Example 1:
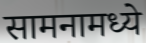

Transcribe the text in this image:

सामनामध्ये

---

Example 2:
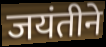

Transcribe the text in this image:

जयंतीने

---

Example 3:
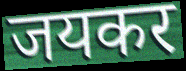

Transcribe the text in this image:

जयकर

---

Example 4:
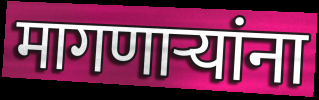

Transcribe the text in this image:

मागणार्‍यांना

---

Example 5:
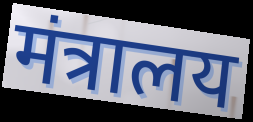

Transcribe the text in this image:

मंत्रालय